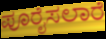
ಪೂರೈಸಲಾರೆ